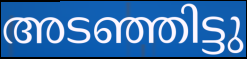
അടഞ്ഞിട്ടു